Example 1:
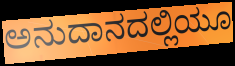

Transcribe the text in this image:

ಅನುದಾನದಲ್ಲಿಯೂ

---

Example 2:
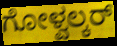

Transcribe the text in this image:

ಗೋಳ್ವಲ್ಕರ್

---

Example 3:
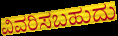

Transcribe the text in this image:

ವಿವರಿಸಬಹುದು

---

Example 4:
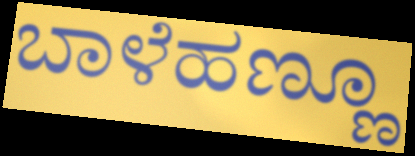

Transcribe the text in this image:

ಬಾಳೆಹಣ್ಣೂ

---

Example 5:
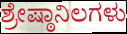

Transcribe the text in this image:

ಶ್ರೇಷ್ಠಾನಿಲಗಳು